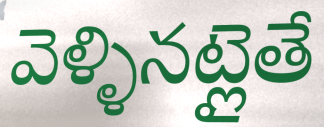
వెళ్ళినట్లైతే